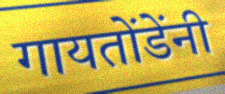
गायतोंडेंनी